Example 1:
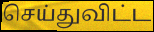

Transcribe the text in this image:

செய்துவிட்ட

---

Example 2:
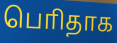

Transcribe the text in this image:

பெரிதாக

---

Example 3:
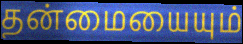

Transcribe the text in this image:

தன்மையையும்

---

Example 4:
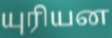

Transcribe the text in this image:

யுரியன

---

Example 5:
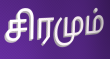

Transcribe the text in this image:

சிரமும்